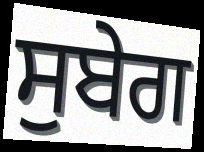
ਸੁਬੇਗ